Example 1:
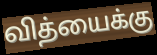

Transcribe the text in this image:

வித்யைக்கு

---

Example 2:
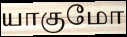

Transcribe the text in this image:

யாகுமோ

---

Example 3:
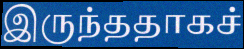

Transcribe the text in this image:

இருந்ததாகச்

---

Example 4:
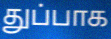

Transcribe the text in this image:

துப்பாக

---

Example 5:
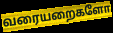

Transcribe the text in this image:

வரையறைகளோ